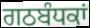
ਗਠਬੰਧਕਾਂ